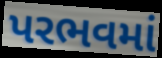
પરભવમાં